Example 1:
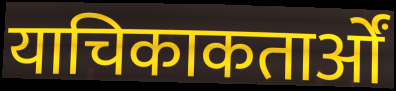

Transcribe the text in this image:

याचिकाकतार्ओं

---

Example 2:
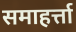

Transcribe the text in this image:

समाहर्त्ता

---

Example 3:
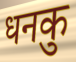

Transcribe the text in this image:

धनकु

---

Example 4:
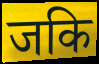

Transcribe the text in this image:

जकि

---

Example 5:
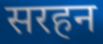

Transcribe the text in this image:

सरहन